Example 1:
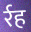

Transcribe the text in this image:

र्रह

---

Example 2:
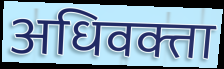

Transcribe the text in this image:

अधिवक्ता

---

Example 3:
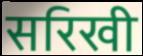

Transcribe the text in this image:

सरिखी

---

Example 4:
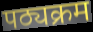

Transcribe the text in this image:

पठ्यक्रम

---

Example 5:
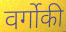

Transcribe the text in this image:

वर्गोकी